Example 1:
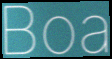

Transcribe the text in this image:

Boa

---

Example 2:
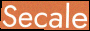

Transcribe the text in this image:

Secale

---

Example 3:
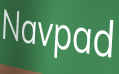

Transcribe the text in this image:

Navpad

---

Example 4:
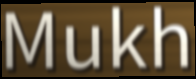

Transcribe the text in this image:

Mukh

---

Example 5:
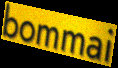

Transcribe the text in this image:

bommai